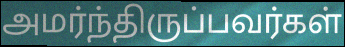
அமர்ந்திருப்பவர்கள்